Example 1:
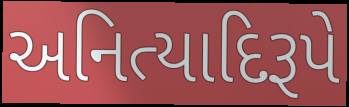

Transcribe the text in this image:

અનિત્યાદિરૂપે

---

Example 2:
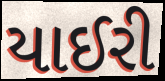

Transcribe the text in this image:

યાઈરી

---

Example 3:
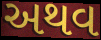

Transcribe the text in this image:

અથવ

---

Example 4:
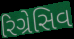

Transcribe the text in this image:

રિગ્રેસિવ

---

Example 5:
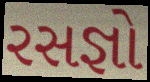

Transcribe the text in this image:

રસજ્ઞો